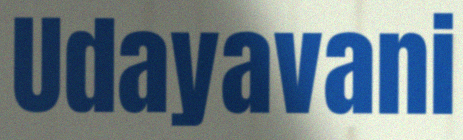
Udayavani